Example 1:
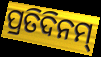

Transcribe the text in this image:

ପ୍ରତିଦିନମ୍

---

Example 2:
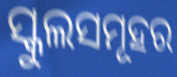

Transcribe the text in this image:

ସ୍କୁଲସମୂହର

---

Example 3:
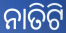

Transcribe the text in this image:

ନାତିଟି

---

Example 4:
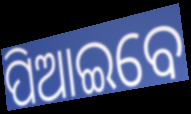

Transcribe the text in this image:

ପିଆଇବେ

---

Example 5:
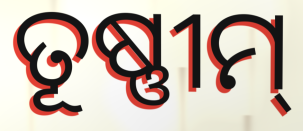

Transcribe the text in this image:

ତୂଷ୍ଣୀମ୍